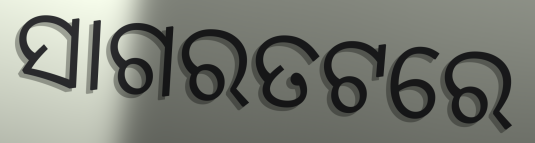
ସାଗରତଟରେ